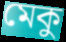
মেকু